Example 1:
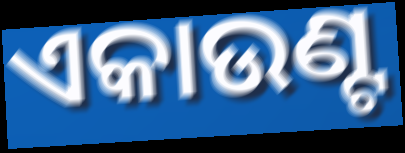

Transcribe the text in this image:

ଏକାଉଣ୍ଟ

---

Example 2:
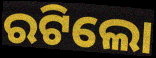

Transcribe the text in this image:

ରଟିଲୋ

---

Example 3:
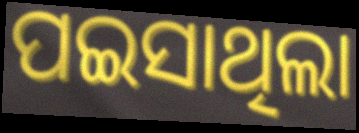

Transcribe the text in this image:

ପଇସାଥିଲା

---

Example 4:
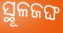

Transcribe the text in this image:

ସ୍ଥୂଳଜଙ୍ଘ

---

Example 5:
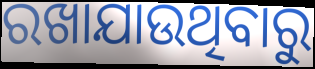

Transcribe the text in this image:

ରଖାଯାଉଥିବାରୁ